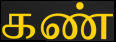
கண்